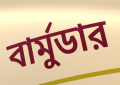
বার্মুডার